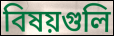
বিষয়গুলি